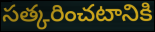
సత్కరించటానికి